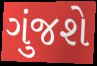
ગુંજશે